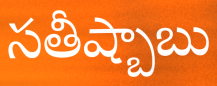
సతీష్బాబు